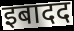
इबादद